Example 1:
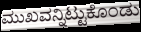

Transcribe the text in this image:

ಮುಖವನ್ನಿಟ್ಟುಕೊಂಡು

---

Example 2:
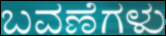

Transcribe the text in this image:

ಬವಣೆಗಳು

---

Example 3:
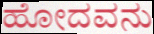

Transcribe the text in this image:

ಹೋದವನು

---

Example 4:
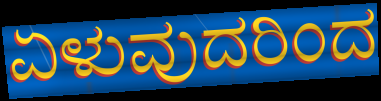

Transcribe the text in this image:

ಏಳುವುದರಿಂದ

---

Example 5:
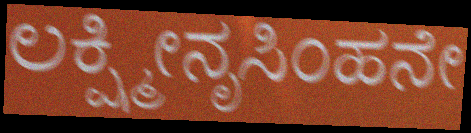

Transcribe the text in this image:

ಲಕ್ಷ್ಮೀನೃಸಿಂಹನೇ